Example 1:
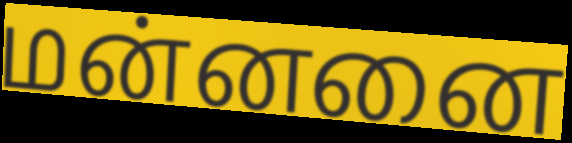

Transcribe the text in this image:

மன்னனை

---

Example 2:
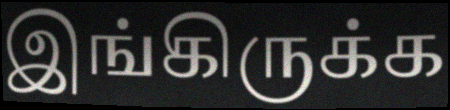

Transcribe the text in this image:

இங்கிருக்க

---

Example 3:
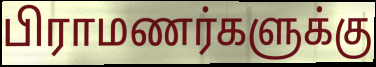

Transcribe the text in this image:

பிராமணர்களுக்கு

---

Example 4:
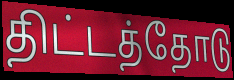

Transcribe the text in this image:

திட்டத்தோடு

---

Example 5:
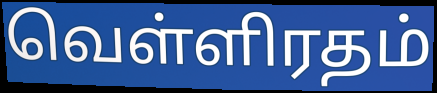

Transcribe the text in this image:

வெள்ளிரதம்